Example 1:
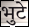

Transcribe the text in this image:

भुटे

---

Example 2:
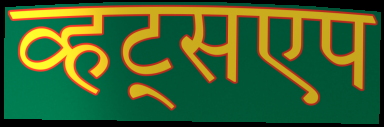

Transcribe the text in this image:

व्हट्सएप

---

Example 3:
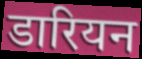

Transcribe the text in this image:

डारियन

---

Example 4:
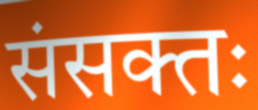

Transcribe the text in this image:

संसक्तः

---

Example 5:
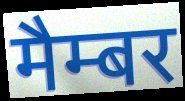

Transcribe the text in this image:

मैम्बर